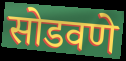
सोडवणे